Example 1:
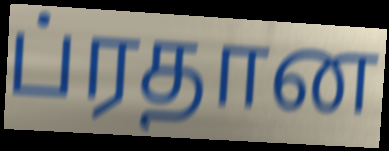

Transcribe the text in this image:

ப்ரதான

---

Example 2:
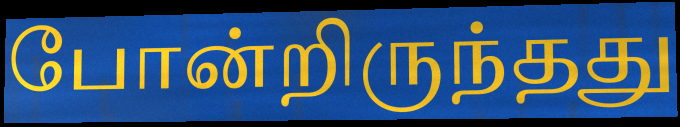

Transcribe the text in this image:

போன்றிருந்தது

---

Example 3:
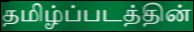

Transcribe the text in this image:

தமிழ்ப்படத்தின்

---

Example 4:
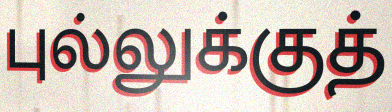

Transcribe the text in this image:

புல்லுக்குத்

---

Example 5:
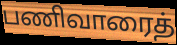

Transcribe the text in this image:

பணிவாரைத்